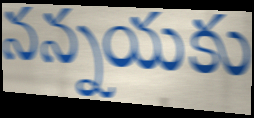
నన్నయకు